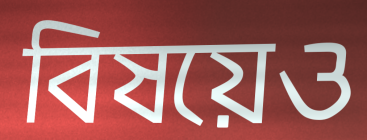
বিষয়েও